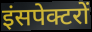
इंसपेक्टरों